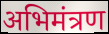
अभिमंत्रण